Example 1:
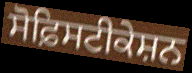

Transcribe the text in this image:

ਸੋਫ਼ਿਸਟੀਕੇਸ਼ਨ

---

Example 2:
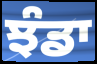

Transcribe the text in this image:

ਝੰਡਾ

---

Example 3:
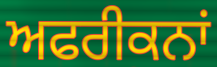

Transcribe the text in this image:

ਅਫਰੀਕਨਾਂ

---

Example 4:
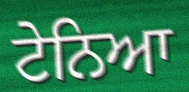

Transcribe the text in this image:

ਟੇਨਿਆ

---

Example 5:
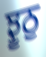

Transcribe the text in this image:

ਝੂਠੁ